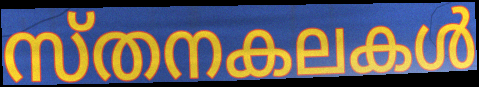
സ്തനകലകൾ